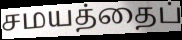
சமயத்தைப்